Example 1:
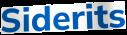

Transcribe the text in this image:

Siderits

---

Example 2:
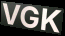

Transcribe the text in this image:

VGK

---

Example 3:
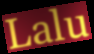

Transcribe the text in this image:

Lalu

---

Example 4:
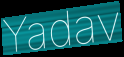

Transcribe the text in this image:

Yadav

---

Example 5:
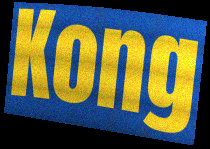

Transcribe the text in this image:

Kong